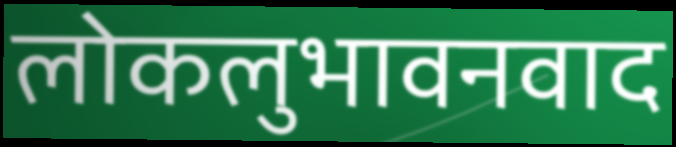
लोकलुभावनवाद